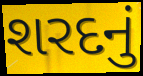
શરદનું